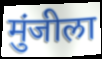
मुंजीला